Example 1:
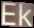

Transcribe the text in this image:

Ek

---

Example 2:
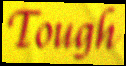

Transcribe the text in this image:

Tough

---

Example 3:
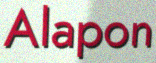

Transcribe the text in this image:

Alapon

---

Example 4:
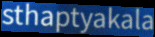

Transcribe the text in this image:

sthaptyakala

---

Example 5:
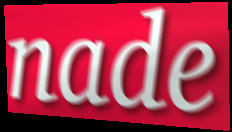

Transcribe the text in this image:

nade